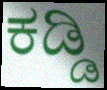
ಕಡ್ಡಿ